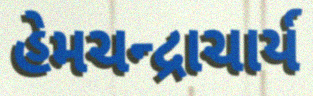
હેમચન્દ્રાચાર્ય